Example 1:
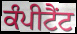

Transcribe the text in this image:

ਕੰਪੀਟੈਂਟ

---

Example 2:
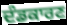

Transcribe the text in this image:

ਦੰਡਕਾਰਣ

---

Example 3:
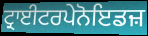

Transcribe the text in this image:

ਟ੍ਰਾਈਟਰਪੇਨੋਇਡਜ਼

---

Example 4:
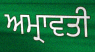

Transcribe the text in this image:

ਅਮ੍ਰਾਵਤੀ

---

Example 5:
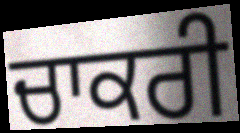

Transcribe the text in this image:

ਚਾਕਰੀ